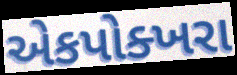
એકપોક્ખરા